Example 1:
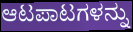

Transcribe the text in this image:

ಆಟಪಾಟಗಳನ್ನು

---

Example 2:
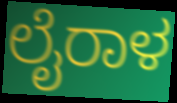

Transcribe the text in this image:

ಲೈರಾಳ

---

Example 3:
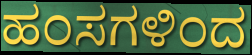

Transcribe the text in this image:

ಹಂಸಗಳಿಂದ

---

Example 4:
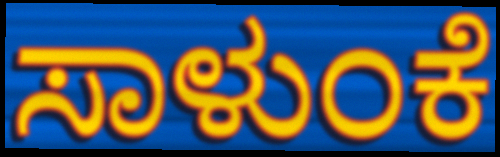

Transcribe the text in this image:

ಸಾಳುಂಕೆ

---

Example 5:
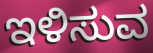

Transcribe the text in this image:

ಇಳಿಸುವ